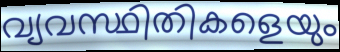
വ്യവസ്ഥിതികളെയും